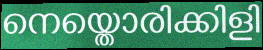
നെയ്തൊരിക്കിളി